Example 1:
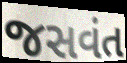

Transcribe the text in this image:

જસવંત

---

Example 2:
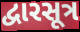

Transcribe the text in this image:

દ્વારસૂત્ર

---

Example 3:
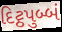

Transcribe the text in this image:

દિટ્ઠપુબ્બં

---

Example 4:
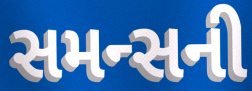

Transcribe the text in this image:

સમન્સની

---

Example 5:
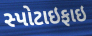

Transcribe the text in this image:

સ્પોટાઇફાઇ